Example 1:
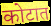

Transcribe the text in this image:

कोटात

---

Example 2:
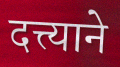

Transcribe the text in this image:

दत्त्याने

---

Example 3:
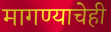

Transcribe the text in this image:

मागण्याचेही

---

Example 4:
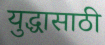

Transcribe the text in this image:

युद्धासाठी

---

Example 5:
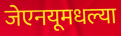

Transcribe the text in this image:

जेएनयूमधल्या